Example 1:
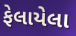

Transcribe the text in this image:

ફેલાયેલા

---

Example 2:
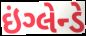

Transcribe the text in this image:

ઇંગ્લેન્ડે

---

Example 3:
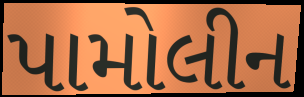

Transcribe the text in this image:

પામોલીન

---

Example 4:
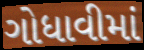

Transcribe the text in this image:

ગોધાવીમાં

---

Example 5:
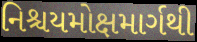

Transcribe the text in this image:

નિશ્ચયમોક્ષમાર્ગથી